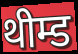
थीम्ड